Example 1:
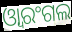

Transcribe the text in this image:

ଓ୍ୱାରଂଗଲ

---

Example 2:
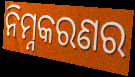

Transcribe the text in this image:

ନିମ୍ନକରଣର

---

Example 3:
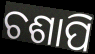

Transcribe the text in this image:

ଚଶାପି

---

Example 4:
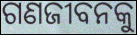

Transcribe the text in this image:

ଗଣଜୀବନକୁ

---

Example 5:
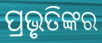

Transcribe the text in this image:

ପ୍ରଭୃତିଙ୍କର